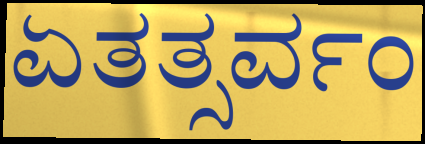
ಏತತ್ಸರ್ವಂ